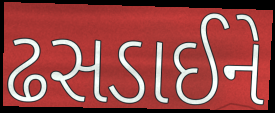
ઢસડાઈને